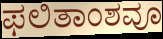
ಫಲಿತಾಂಶವೂ